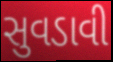
સુવડાવી